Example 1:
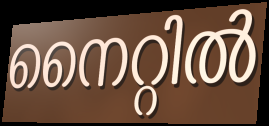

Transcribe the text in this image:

നൈറ്റിൽ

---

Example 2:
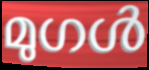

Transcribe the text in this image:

മുഗൾ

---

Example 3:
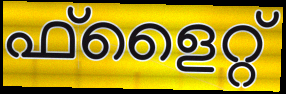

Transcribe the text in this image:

ഫ്ളൈറ്റ്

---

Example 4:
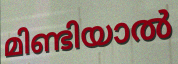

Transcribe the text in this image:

മിണ്ടിയാൽ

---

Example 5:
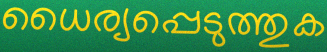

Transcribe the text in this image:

ധൈര്യപ്പെടുത്തുക